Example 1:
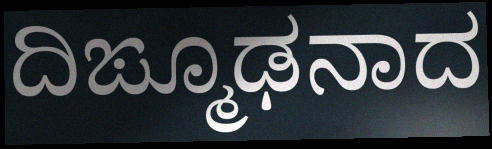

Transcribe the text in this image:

ದಿಙ್ಮೂಢನಾದ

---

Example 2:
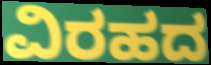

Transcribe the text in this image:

ವಿರಹದ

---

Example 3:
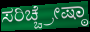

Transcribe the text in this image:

ಸರಿಚ್ಚ್ರೇಷ್ಠಾ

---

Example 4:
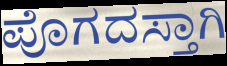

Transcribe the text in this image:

ಪೊಗದಸ್ತಾಗಿ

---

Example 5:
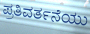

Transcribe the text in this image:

ಪ್ರತಿವರ್ತನೆಯು